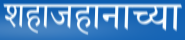
शहाजहानाच्या